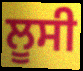
ਲੂਸੀ